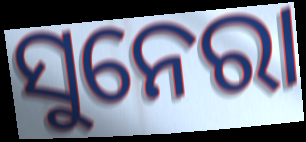
ସୁନେରା